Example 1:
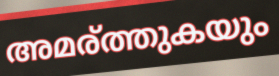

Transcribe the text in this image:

അമര്ത്തുകയും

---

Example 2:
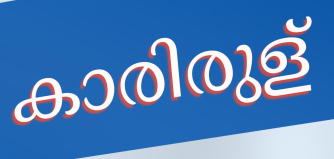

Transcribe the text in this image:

കാരിരുള്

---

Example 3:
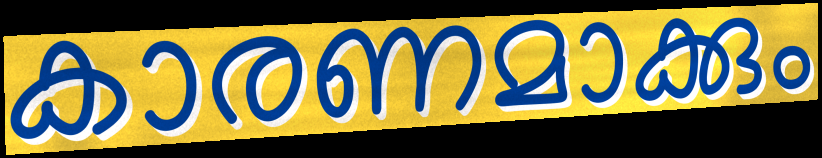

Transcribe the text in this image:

കാരണമാക്കും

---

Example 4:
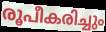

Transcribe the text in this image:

രൂപീകരിച്ചും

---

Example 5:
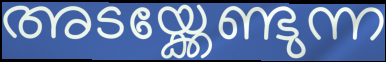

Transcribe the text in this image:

അടയ്ക്കേണ്ടുന്ന